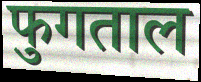
फुगताल